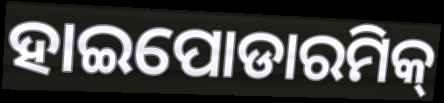
ହାଇପୋଡାରମିକ୍